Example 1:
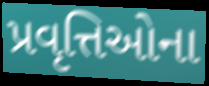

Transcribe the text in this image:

પ્રવૃત્તિઓના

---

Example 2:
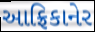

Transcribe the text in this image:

આફ્રિકાનેર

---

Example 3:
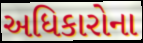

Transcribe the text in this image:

અધિકારોના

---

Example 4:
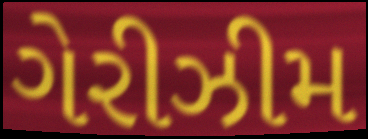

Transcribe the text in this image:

ગેરીઝીમ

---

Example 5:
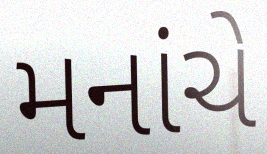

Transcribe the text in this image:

મનાંચે